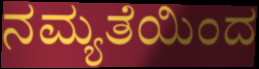
ನಮ್ಯತೆಯಿಂದ